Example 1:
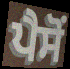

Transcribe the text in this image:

ਪੈਸੋਂ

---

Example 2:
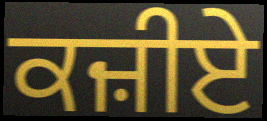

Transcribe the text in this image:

ਕਜ਼ੀਏ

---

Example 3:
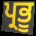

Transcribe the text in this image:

ਪ੍ਰਭੂ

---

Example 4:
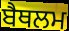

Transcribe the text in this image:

ਬੈਥਲਮ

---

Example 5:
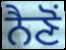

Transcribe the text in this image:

ਨੈਣੋਂ